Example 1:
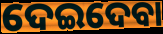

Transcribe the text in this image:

ଦେଇଦେବା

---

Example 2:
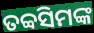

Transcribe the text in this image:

ତବ୍ବସିମଙ୍କ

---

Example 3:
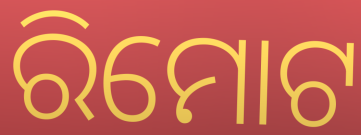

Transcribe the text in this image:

ରିମୋଟ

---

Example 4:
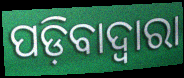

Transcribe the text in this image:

ପଡ଼ିବାଦ୍ୱାରା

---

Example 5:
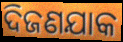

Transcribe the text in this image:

ଦିଜଣଯାକ